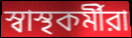
স্বাস্থকর্মীরা